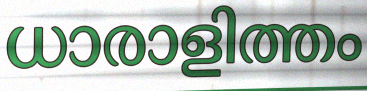
ധാരാളിത്തം